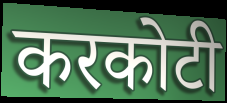
करकोटी